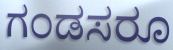
ಗಂಡಸರೂ